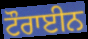
ਟੌਰਾਈਨ